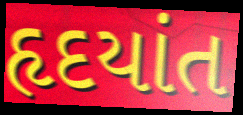
હૃદયાંત